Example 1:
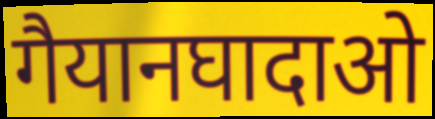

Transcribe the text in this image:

गैयानघादाओ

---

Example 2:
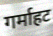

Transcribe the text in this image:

गर्माहट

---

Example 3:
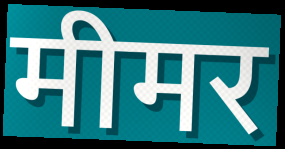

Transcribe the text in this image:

मीमर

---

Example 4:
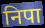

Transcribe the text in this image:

निपा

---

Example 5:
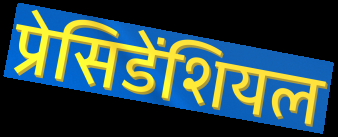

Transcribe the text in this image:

प्रेसिडेंशियल